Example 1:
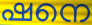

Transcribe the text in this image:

ഷനെ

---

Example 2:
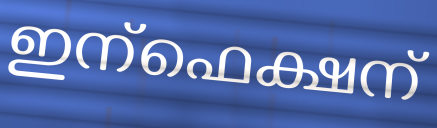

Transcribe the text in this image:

ഇന്ഫെക്ഷന്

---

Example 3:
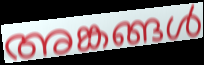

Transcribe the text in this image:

അങ്കങ്ങൾ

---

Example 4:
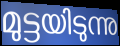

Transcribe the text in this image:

മുട്ടയിടുന്നു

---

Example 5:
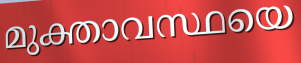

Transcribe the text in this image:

മുക്താവസ്ഥയെ